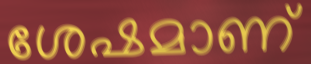
ശേഷമാണ്